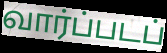
வார்ப்படப்